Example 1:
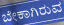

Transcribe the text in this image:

ಬೇಕಾಗಿರುವ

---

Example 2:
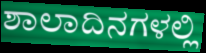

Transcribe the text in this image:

ಶಾಲಾದಿನಗಳಲ್ಲಿ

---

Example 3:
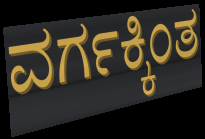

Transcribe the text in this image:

ವರ್ಗಕ್ಕಿಂತ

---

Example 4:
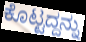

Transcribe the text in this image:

ಕೊಟ್ಟದ್ದನ್ನು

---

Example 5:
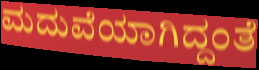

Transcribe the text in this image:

ಮದುವೆಯಾಗಿದ್ದಂತೆ